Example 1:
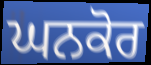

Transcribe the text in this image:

ਘਨਕੋਰ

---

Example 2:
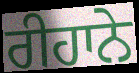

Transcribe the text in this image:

ਰੀਹਾਨੇ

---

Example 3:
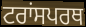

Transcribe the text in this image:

ਟਰਾਂਸਪਰਥ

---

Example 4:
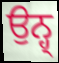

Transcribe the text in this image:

ਉਨ੍ਹ੍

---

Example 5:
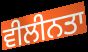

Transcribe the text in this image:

ਵੀਲੀਨਤਾ